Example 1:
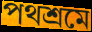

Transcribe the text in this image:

পথশ্রমে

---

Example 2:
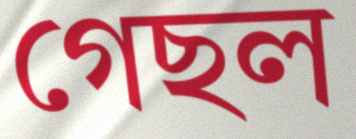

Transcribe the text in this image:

গেছল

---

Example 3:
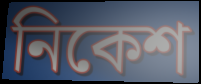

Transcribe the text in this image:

নিকেশ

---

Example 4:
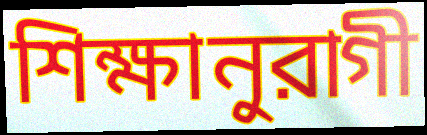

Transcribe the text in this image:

শিক্ষানুরাগী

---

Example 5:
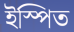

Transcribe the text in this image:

ইস্পিত